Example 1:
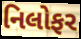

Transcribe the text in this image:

નિલોફર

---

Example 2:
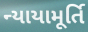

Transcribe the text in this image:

ન્યાયામૂર્તિ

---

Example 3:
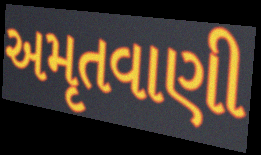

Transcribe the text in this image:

અમૃતવાણી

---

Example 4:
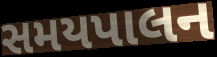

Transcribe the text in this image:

સમયપાલન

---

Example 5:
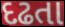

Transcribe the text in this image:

દઢતા